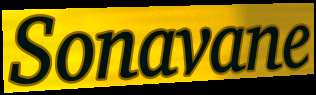
Sonavane